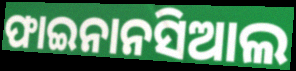
ଫାଇନାନସିଆଲ